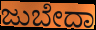
ಜುಬೇದಾ